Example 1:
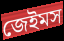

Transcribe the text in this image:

জেইমস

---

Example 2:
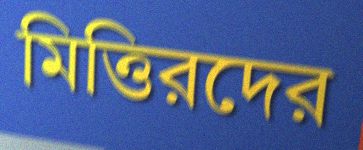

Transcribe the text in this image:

মিত্তিরদের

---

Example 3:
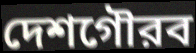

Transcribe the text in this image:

দেশগৌরব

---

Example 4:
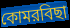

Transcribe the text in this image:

কোমরবিছা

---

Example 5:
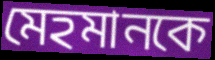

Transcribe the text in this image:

মেহমানকে